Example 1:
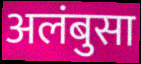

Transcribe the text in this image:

अलंबुसा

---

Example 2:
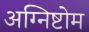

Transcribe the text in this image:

अग्निष्टोम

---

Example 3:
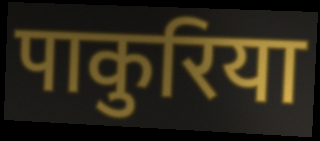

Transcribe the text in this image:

पाकुरिया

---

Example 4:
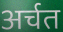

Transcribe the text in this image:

अर्चत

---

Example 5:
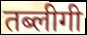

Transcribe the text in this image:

तब्लीगी